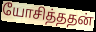
யோசித்ததன்